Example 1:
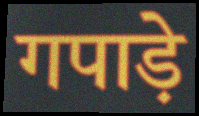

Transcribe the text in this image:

गपाड़े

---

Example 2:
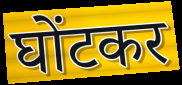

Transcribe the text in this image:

घोंटकर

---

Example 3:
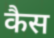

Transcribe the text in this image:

कैस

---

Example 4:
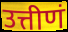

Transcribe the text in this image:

उत्तीणं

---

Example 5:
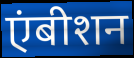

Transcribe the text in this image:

एंबीशन